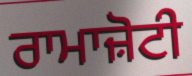
ਰਾਮਾਜ਼ੋਟੀ